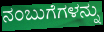
ನಂಬುಗೆಗಳನ್ನು